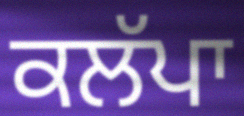
ਕਲੱਪਾ